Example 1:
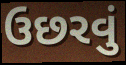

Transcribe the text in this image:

ઉછરવું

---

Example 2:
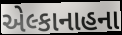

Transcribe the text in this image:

એલ્કાનાહના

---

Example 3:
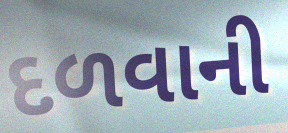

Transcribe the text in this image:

દળવાની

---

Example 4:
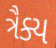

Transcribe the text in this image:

ત્રૈક્ય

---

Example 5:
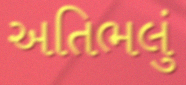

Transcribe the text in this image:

અતિભલું